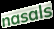
nasals